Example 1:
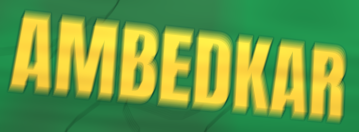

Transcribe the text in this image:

AMBEDKAR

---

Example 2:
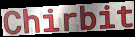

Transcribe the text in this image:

Chirbit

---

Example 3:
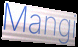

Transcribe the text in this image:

Mangi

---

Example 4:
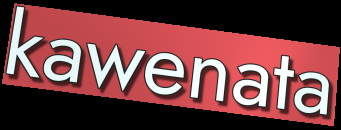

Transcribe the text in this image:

kawenata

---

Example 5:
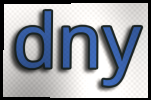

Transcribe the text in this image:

dny